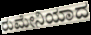
ರುಮೇನಿಯಾದ